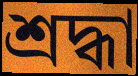
শ্রদ্ধা